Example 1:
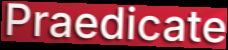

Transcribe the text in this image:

Praedicate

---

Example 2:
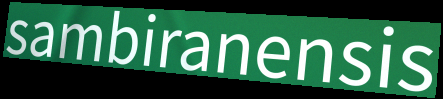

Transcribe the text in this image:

sambiranensis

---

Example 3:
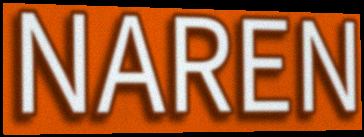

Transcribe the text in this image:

NAREN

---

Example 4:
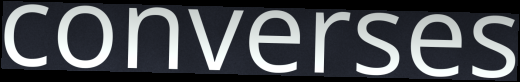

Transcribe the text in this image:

converses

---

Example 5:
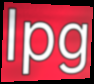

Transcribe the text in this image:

lpg